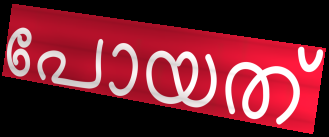
പോയത്